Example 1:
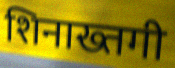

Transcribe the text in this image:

शिनाख्तगी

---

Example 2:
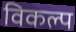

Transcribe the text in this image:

विकल्प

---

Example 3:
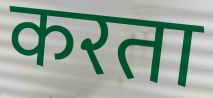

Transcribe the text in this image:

करता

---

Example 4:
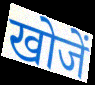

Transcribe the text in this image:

खोजें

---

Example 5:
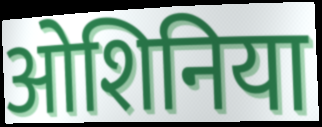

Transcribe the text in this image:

ओशिनिया